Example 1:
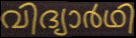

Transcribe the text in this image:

വിദ്യാർഥി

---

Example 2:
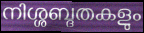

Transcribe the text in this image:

നിശ്ശബ്ദതകളും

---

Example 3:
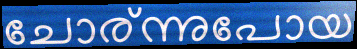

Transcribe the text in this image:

ചോര്ന്നുപോയ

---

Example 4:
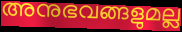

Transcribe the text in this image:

അനുഭവങ്ങളുമല്ല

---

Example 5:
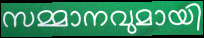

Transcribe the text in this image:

സമ്മാനവുമായി